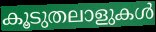
കൂടുതലാളുകൾ